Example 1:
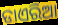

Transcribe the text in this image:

ଡାଏରିଆ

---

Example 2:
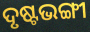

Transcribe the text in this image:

ଦୃଷ୍ଟଭଙ୍ଗୀ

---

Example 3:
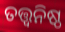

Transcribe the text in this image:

ତତ୍ତ୍ୱନିଷ୍ଠ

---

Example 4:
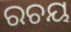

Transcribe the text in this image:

ରଚୟ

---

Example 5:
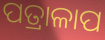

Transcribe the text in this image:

ପତ୍ରାଳାପ